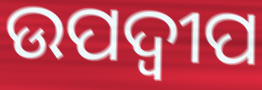
ଉପଦ୍ବୀପ